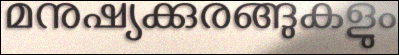
മനുഷ്യക്കുരങ്ങുകളും